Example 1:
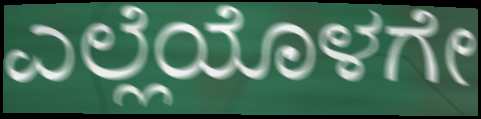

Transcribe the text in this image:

ಎಲ್ಲೆಯೊಳಗೇ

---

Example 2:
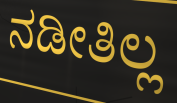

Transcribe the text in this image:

ನಡೀತಿಲ್ಲ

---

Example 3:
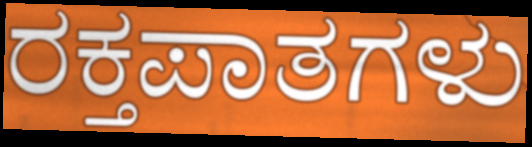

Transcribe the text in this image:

ರಕ್ತಪಾತಗಳು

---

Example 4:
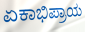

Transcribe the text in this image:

ಏಕಾಭಿಪ್ರಾಯ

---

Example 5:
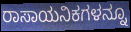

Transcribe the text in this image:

ರಾಸಾಯನಿಕಗಳನ್ನೂ